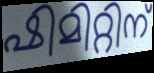
ഷിമിറ്റിന്